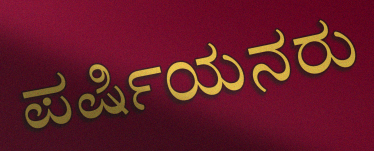
ಪರ್ಷಿಯನರು